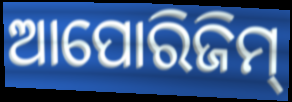
ଆପୋରିଜିମ୍